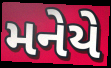
મનેયે